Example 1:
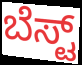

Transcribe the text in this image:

ಬೆಸ್ಟ್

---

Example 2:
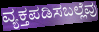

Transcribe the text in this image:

ವ್ಯಕ್ತಪಡಿಸಬಲ್ಲೆವು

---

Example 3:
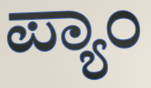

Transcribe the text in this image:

ಪ್ಯಾಂ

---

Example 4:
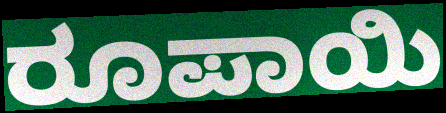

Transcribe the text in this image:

ರೂಪಾಯಿ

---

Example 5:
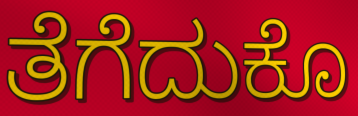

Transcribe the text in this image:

ತೆಗೆದುಕೊ